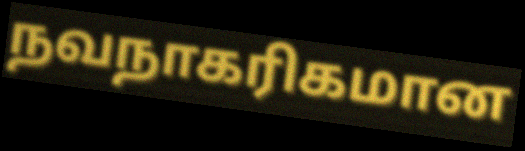
நவநாகரிகமான